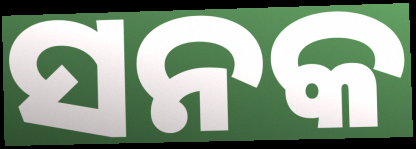
ସନକ